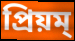
প্রিয়ম্